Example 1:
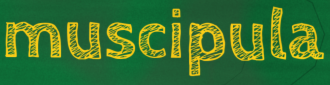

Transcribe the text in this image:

muscipula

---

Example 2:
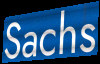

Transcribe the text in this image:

Sachs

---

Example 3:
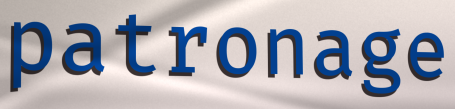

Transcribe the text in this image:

patronage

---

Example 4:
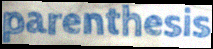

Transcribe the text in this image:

parenthesis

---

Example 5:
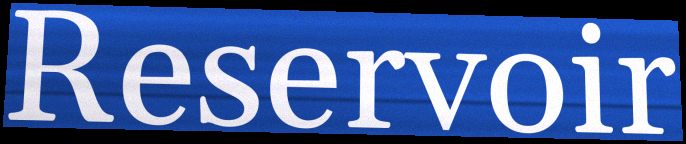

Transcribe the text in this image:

Reservoir